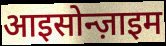
आइसोन्ज़ाइम